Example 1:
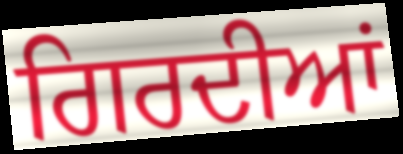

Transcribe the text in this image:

ਗਿਰਦੀਆਂ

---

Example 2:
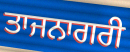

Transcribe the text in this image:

ਤਾਜਨਾਗਰੀ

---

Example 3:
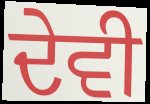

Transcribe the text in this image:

ਦੇਵੀ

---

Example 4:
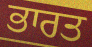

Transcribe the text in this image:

ਭਾਰਤ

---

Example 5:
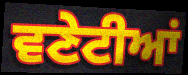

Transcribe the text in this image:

ਵਣੇਟੀਆਂ